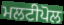
ਮਲਟੀਪੋਲ